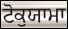
ਟੋਕੁਯਾਮਾ